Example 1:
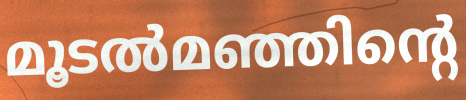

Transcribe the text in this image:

മൂടൽമഞ്ഞിന്റെ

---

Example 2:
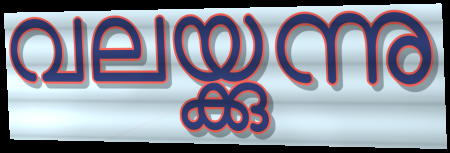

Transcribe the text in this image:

വലയ്ക്കുന്നു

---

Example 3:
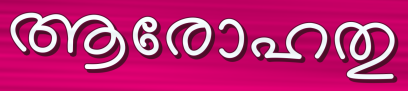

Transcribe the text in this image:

ആരോഹതു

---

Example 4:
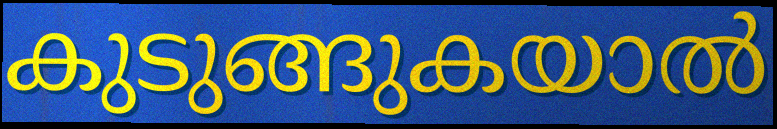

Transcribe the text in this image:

കുടുങ്ങുകയാൽ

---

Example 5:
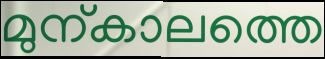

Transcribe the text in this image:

മുന്കാലത്തെ